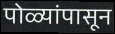
पोळ्यांपासून